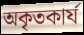
অকৃতকাৰ্য